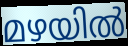
മഴയിൽ